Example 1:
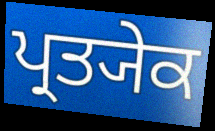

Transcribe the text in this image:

ਪ੍ਰਤ੍ਯੇਕ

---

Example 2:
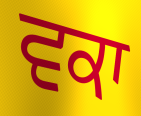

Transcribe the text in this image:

ਵਕਾ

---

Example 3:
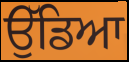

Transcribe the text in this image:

ਉੱਡਿਆ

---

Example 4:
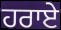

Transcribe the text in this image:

ਹਰਾਏ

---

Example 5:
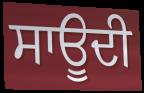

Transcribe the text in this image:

ਸਾਊਦੀ